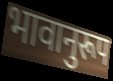
भावानुरूप